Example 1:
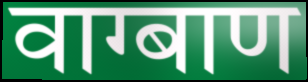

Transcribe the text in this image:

वाग्बाण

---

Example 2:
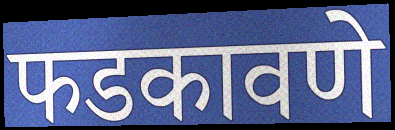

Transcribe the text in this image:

फडकावणे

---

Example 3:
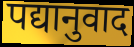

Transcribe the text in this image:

पद्यानुवाद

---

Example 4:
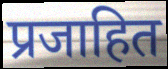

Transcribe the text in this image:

प्रजाहित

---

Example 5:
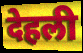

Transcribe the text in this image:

देहली